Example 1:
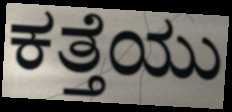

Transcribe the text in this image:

ಕತ್ತೆಯು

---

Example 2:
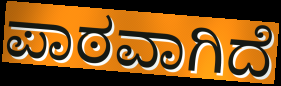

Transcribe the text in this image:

ಪಾಠವಾಗಿದೆ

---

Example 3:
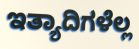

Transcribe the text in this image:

ಇತ್ಯಾದಿಗಳೆಲ್ಲ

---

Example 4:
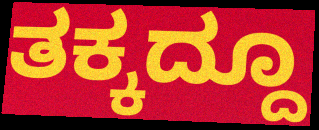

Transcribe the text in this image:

ತಕ್ಕದ್ದೂ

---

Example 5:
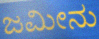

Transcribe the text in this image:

ಜಮೀನು